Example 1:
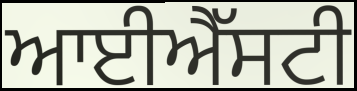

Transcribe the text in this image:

ਆਈਐੱਸਟੀ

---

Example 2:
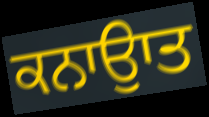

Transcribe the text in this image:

ਕਨਾਉਾਤ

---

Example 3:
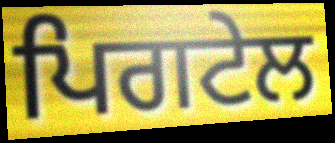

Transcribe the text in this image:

ਪਿਗਟੇਲ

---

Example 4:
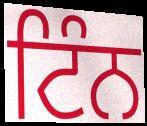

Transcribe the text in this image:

ਟਿੰਨ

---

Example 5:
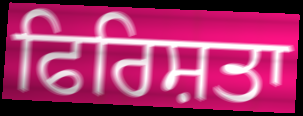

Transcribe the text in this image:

ਫਿਰਿਸ਼ਤਾ